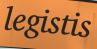
legistis